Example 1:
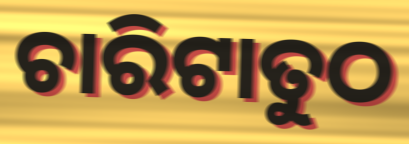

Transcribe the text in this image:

ଚାରିଟାତୁଠ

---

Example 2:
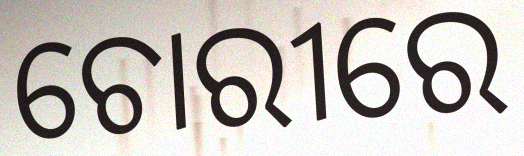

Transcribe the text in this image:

ଚୋରୀରେ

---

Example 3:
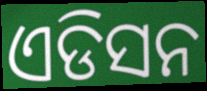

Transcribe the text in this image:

ଏଡିସନ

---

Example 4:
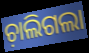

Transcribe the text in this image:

ଚ଼ାଲିଗଲା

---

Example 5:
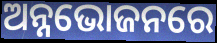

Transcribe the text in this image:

ଅନ୍ନଭୋଜନରେ